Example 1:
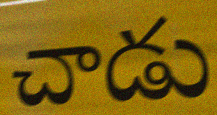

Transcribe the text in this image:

చాడు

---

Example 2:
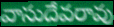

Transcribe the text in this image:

వాసుదేవరావు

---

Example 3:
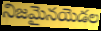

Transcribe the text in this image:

నిజమైనయెడల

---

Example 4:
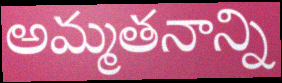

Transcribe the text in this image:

అమ్మతనాన్ని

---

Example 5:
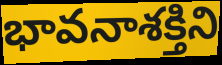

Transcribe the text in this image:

భావనాశక్తిని